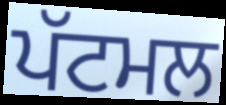
ਪੱਟਮਲ